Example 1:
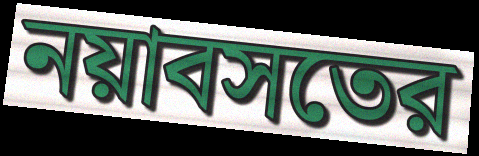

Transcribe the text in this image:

নয়াবসতের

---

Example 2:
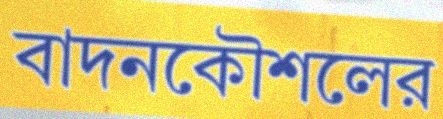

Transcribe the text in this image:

বাদনকৌশলের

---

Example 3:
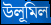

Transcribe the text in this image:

উলূমিল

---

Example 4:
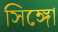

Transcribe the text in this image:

সিঙ্গো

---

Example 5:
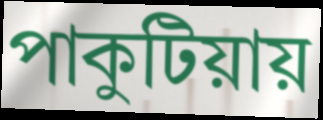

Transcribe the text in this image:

পাকুটিয়ায়